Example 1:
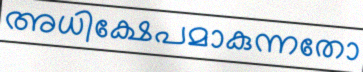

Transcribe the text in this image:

അധിക്ഷേപമാകുന്നതോ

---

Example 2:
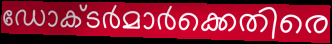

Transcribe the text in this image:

ഡോക്ടർമാർക്കെതിരെ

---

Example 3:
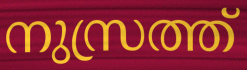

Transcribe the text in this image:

നുസ്രത്ത്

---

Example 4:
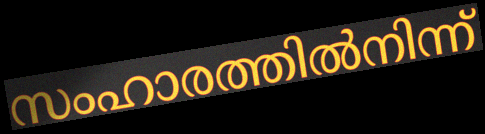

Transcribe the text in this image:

സംഹാരത്തിൽനിന്ന്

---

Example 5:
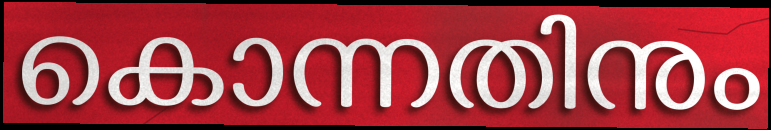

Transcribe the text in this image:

കൊന്നതിനും